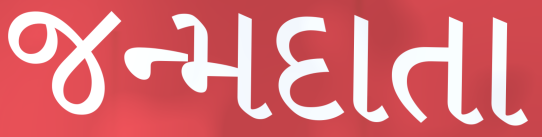
જન્મદાતા